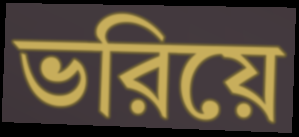
ভরিয়ে